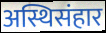
अस्थिसंहार